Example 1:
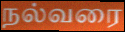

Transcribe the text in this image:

நல்வரை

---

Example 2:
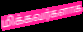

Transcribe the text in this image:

மிக்கவர்களாக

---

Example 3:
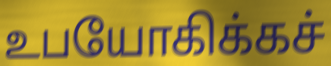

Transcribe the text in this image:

உபயோகிக்கச்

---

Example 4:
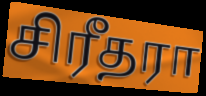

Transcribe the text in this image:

சிரீதரா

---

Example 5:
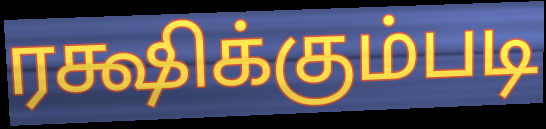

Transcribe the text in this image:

ரக்ஷிக்கும்படி